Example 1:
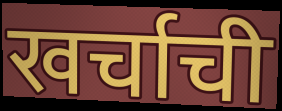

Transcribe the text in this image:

खर्चाची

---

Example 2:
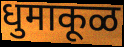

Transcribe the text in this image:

धुमाकूळ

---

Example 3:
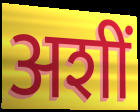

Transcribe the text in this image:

अशीं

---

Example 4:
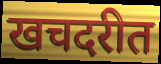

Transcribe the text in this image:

खचदरीत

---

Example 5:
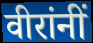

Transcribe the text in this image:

वीरांनीं